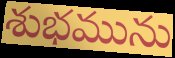
శుభమును